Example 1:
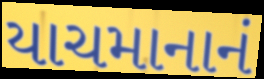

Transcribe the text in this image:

યાચમાનાનં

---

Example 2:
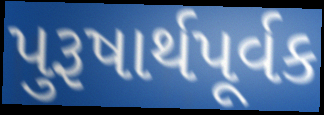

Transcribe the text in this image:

પુરૂષાર્થપૂર્વક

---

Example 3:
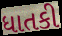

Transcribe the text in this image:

ધાતકી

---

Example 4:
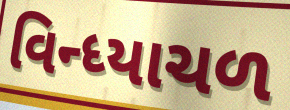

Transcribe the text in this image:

વિન્ધ્યાચળ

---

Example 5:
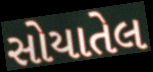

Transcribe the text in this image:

સોયાતેલ